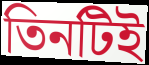
তিনটিই